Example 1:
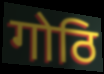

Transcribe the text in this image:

गोठि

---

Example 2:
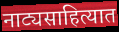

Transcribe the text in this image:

नाट्यसाहित्यात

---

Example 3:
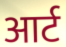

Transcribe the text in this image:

आर्ट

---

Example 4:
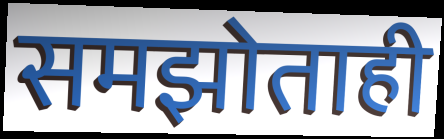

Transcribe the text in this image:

समझोताही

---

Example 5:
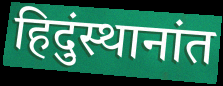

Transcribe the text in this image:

हिदुंस्थानांत